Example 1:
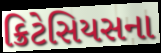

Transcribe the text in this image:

ક્રિટેસિયસના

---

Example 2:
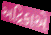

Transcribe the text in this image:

અદ્રિકાએ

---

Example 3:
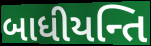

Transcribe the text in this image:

બાધીયન્તિ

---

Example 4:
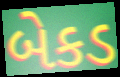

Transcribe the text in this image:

બેકડ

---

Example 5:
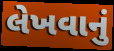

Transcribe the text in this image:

લેખવાનું